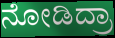
ನೋಡಿದ್ರಾ